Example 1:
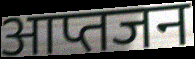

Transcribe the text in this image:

आप्तजन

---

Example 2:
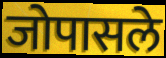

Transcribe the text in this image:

जोपासले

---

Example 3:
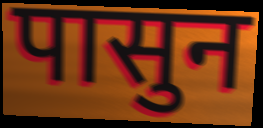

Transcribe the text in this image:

पासुन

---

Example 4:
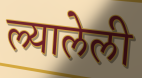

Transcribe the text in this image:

ल्यालेली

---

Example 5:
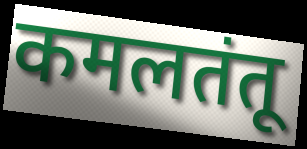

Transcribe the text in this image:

कमलतंतू